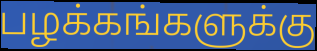
பழக்கங்களுக்கு